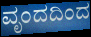
ವೃಂದದಿಂದ